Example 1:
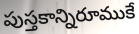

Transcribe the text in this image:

పుస్తకాన్నిరూముకే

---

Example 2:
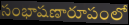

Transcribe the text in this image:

సంభాషణారూపంలో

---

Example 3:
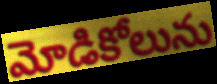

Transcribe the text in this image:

మోడికోలును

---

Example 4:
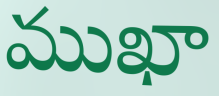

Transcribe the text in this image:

ముఖా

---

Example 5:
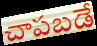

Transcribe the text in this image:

చాపబడే